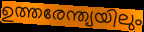
ഉത്തരേന്ത്യയിലും